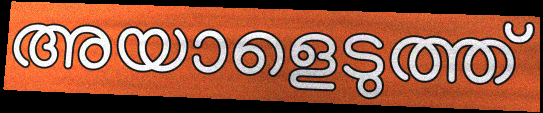
അയാളെടുത്ത്